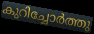
കുറിച്ചോർത്തു